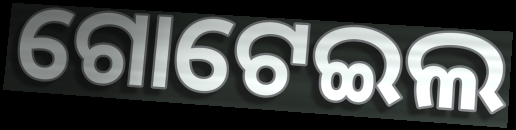
ଗୋଟେଇଲ